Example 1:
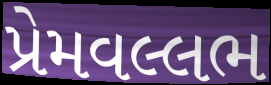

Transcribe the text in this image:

પ્રેમવલ્લભ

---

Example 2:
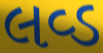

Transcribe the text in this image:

લવ્ડ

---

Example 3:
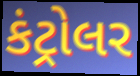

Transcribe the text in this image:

કંટ્રોલર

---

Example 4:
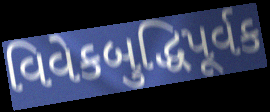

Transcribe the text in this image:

વિવેકબુદ્ધિપૂર્વક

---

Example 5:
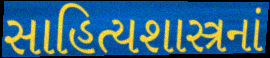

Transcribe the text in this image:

સાહિત્યશાસ્ત્રનાં